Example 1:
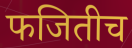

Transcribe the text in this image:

फजितीच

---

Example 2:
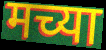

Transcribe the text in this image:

मच्या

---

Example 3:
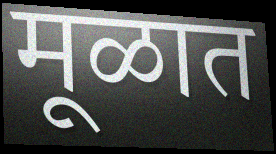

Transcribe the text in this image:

मूळात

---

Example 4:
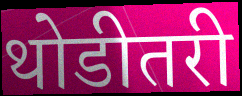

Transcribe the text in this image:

थोडीतरी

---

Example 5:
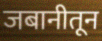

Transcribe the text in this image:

जबानीतून